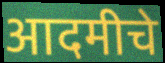
आदमीचे